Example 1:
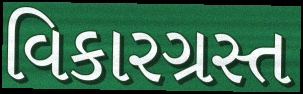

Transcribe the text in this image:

વિકારગ્રસ્ત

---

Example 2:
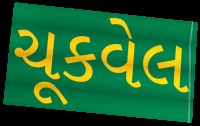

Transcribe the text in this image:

ચૂકવેલ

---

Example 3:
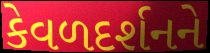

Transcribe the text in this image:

કેવળદર્શનને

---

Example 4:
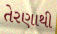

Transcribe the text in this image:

તેરણાથી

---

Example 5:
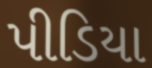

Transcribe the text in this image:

પીડિયા